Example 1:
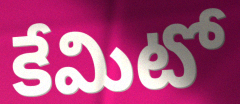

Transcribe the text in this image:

కేమిటో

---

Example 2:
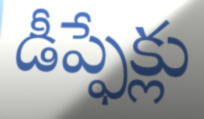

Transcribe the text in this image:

డీప్ఫేక్లు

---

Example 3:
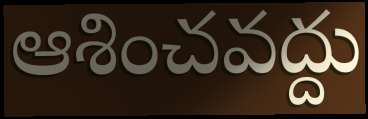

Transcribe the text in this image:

ఆశించవద్దు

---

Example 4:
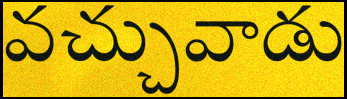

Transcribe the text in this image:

వచ్చువాడు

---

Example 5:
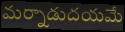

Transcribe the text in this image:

మర్నాడుదయమే